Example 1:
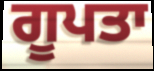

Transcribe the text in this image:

ਗੂਪਤਾ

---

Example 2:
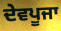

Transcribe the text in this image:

ਦੇਵਪੂਜਾ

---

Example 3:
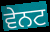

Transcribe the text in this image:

ਵੇਨਟ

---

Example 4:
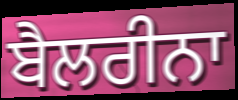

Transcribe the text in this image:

ਬੈਲਰੀਨਾ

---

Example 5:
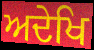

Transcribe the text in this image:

ਅਦੇਖਿ